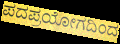
ಪದಪ್ರಯೋಗದಿಂದ